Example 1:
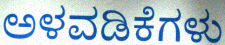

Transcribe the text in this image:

ಅಳವಡಿಕೆಗಳು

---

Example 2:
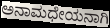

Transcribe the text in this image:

ಅನಾಮಧೇಯನಾಗಿ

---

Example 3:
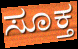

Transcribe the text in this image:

ಸೂಕ್ತ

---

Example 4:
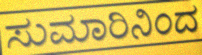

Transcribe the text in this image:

ಸುಮಾರಿನಿಂದ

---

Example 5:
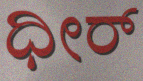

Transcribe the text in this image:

ಧೀರ್